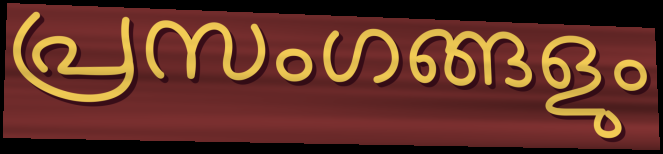
പ്രസംഗങ്ങളും